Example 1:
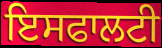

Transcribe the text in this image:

ਇਸਫਾਲਟੀ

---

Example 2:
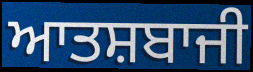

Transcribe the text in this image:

ਆਤਸ਼ਬਾਜੀ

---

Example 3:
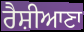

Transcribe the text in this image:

ਰੈਸ਼ੀਆਣਾ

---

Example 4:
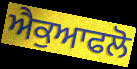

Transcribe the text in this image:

ਐਕੁਆਫਲੋ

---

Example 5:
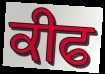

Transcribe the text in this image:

ਕੀਫ